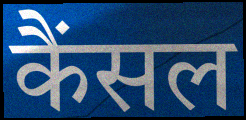
कैंसल